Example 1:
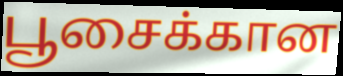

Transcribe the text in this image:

பூசைக்கான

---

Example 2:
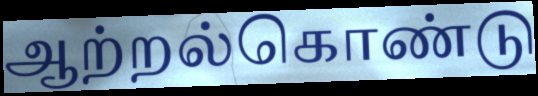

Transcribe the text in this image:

ஆற்றல்கொண்டு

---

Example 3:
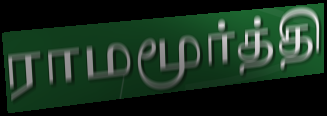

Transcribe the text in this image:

ராமமூர்த்தி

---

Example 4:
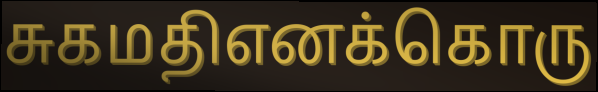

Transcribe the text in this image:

சுகமதிஎனக்கொரு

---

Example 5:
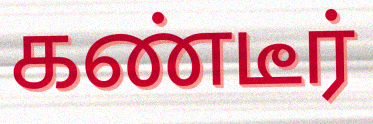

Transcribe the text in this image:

கண்டீர்